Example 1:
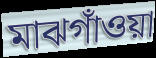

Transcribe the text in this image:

মাঝগাঁওয়া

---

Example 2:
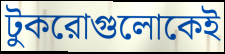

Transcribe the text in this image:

টুকরোগুলোকেই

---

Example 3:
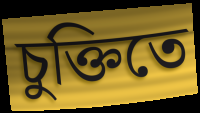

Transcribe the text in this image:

চুক্তিতে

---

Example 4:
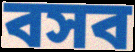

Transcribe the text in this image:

বসব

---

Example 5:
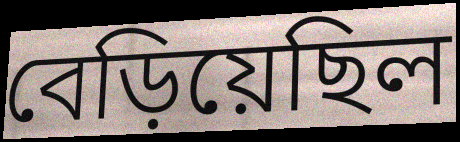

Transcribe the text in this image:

বেড়িয়েছিল